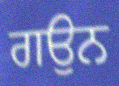
ਗਉਨ